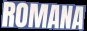
ROMANA